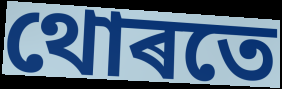
থোৰতে